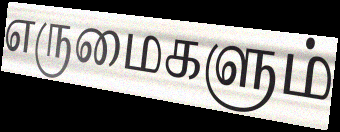
எருமைகளும்